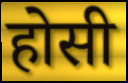
होसी